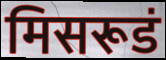
मिसरूडं